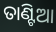
ତାଣ୍ଟିଆ